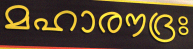
മഹാരൗദ്രഃ